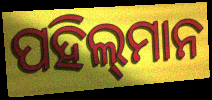
ପହିଲ୍‌ମାନ